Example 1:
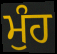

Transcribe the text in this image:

ਮੁੰਹ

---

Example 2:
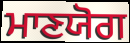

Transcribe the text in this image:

ਮਾਣਯੋਗ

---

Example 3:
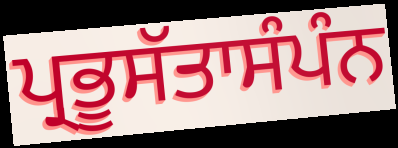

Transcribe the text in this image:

ਪ੍ਰਭੂਸੱਤਾਸੰਪੰਨ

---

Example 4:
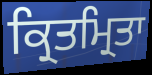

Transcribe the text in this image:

ਕ੍ਰਿਤਮ੍ਰਿਤਾ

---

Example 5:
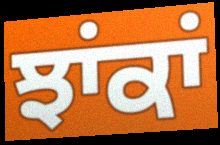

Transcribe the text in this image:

ਝਾਂਕਾਂ